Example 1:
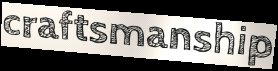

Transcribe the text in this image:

craftsmanship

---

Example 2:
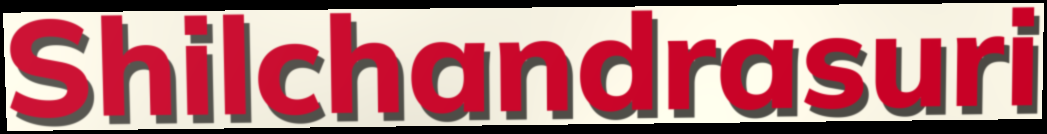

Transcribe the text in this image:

Shilchandrasuri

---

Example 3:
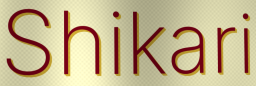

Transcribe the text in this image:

Shikari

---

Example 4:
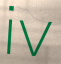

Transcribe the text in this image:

iv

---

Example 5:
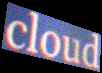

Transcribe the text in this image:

cloud